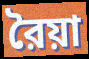
রৈয়া